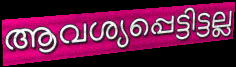
ആവശ്യപ്പെട്ടിട്ടല്ല